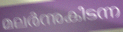
മലർന്നുകിടന്ന